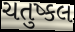
ચતુષ્કલ